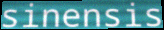
sinensis